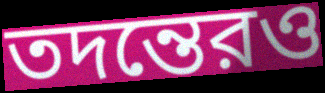
তদন্তেরও